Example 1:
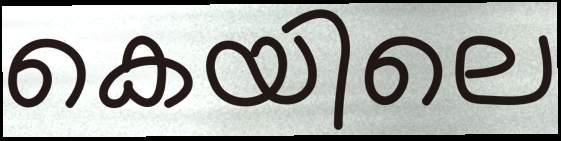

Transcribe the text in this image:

കെയിലെ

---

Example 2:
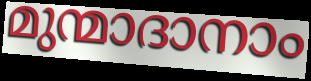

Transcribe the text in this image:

മുന്മാദാനാം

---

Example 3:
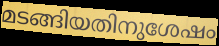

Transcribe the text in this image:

മടങ്ങിയതിനുശേഷം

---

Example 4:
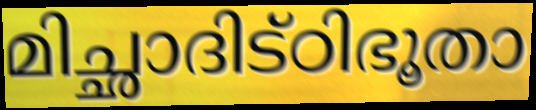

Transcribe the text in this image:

മിച്ഛാദിട്ഠിഭൂതാ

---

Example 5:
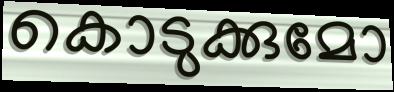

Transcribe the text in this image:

കൊടുക്കുമോ